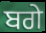
ਬਗੇ